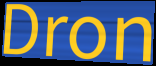
Dron